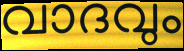
വാദവും